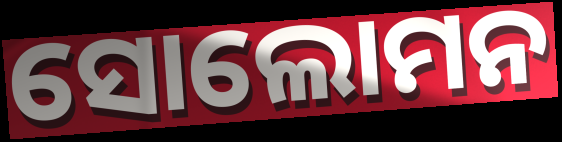
ସୋଲୋମନ